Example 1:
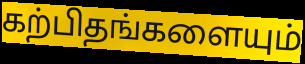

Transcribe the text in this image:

கற்பிதங்களையும்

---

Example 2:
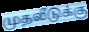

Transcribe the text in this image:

முதலீடுக்கு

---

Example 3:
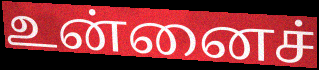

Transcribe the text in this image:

உன்னைச்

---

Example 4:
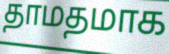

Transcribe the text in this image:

தாமதமாக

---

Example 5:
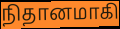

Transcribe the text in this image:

நிதானமாகி